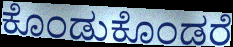
ಕೊಂಡುಕೊಂಡರೆ